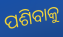
ପଶିବାକୁ